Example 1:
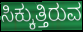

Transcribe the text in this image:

ಸಿಕ್ಕುತ್ತಿರುವ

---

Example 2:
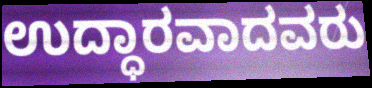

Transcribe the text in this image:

ಉದ್ಧಾರವಾದವರು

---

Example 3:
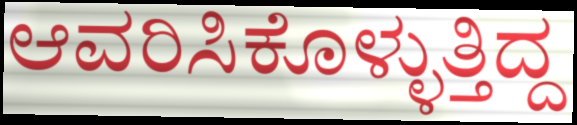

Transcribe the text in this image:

ಆವರಿಸಿಕೊಳ್ಳುತ್ತಿದ್ದ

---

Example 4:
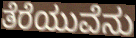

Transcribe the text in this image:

ತೆರೆಯುವೆನು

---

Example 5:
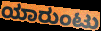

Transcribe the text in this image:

ಯಾರುಂಟು